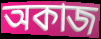
অকাজ